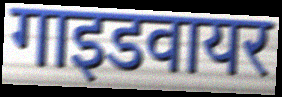
गाइडवायर